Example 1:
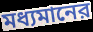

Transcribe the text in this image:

মধ্যমানের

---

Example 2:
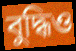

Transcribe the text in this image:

বুদ্ধিও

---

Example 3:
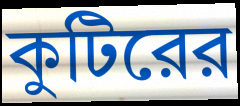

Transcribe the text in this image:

কুটিরের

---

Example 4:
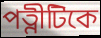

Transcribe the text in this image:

পত্নীটিকে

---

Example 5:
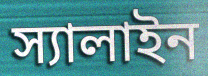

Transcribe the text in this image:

স্যালাইন